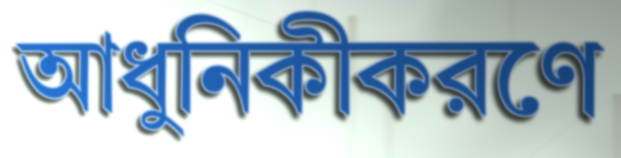
আধুনিকীকরণে